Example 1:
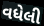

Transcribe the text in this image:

વધેલી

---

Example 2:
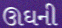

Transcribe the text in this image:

ઊઘની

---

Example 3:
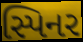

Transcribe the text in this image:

સ્પિનર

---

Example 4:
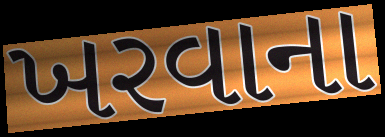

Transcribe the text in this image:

ખરવાના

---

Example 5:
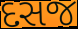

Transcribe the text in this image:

દસજ